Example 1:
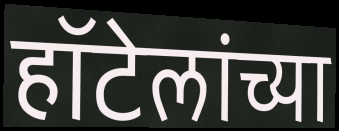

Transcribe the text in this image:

हॉटेलांच्या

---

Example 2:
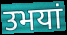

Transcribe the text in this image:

उभयां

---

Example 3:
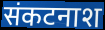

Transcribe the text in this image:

संकटनाश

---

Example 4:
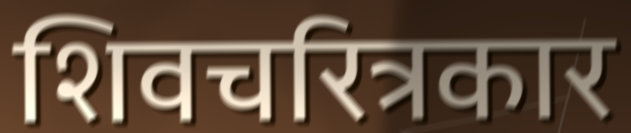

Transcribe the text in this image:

शिवचरित्रकार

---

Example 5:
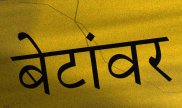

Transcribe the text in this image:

बेटांवर